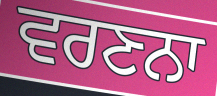
ਵਰਣਨਾ